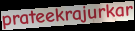
prateekrajurkar